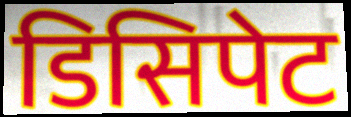
डिसिपेट